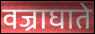
वज्राघाते